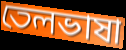
তেলভাষা